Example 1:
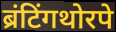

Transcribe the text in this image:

ब्रंटिंगथोरपे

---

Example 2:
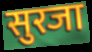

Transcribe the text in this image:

सुरजा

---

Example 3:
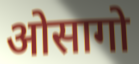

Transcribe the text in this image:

ओसागो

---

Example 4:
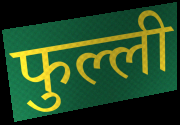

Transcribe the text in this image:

फुल्ली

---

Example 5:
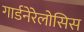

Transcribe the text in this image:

गार्डनेरेलोसिस